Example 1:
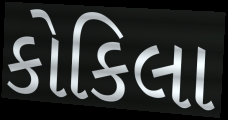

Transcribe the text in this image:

કોકિલા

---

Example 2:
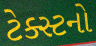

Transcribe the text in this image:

ટેક્સ્ટનો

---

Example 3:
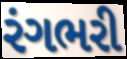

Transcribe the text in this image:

રંગભરી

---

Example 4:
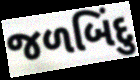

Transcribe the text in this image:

જળબિંદુ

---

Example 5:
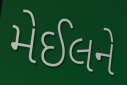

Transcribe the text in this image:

મેઈલને